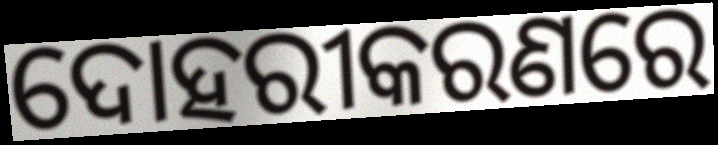
ଦୋହରୀକରଣରେ